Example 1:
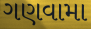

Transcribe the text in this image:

ગણવામા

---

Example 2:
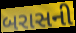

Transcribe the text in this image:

બરાસની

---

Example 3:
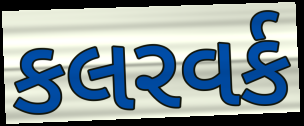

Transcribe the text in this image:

કલરવર્ક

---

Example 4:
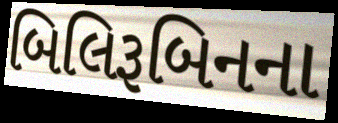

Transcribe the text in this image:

બિલિરૂબિનના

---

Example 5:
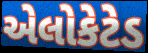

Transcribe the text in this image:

એલોકેટેડ